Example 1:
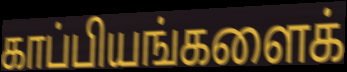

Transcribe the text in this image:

காப்பியங்களைக்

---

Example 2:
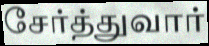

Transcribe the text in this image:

சேர்த்துவார்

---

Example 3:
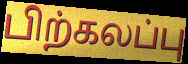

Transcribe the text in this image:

பிற்கலப்பு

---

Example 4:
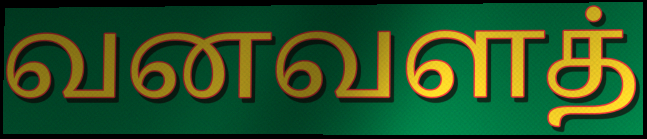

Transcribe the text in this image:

வனவளத்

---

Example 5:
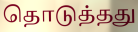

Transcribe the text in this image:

தொடுத்தது